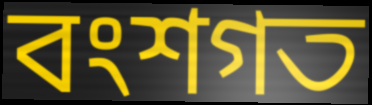
বংশগত